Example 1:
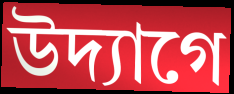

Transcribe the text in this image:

উদ্যাগে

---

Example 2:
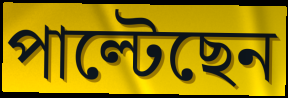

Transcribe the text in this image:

পাল্টেছেন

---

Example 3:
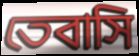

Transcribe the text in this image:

তেবাসি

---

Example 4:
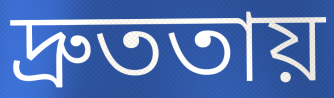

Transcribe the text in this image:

দ্রুততায়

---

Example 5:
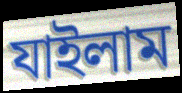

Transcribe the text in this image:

যাইলাম